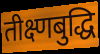
तीक्ष्णबुद्धि